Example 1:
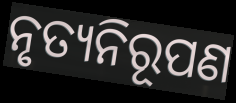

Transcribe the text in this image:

ନୃତ୍ୟନିରୂପଣ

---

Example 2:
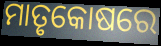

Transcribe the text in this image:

ମାତୃକୋଷରେ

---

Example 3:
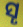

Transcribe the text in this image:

ସୄ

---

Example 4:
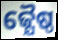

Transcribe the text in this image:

ଜ୍ଯୈଷ୍ଠ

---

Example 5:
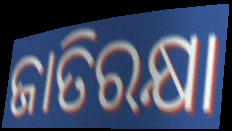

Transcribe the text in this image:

ଜାତିରକ୍ଷା